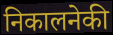
निकालनेकी